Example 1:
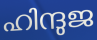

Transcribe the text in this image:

ഹിന്ദുജ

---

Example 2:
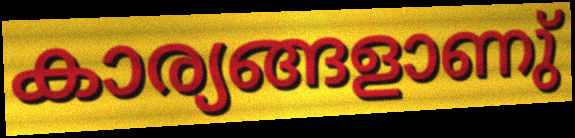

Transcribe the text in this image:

കാര്യങ്ങളാണു്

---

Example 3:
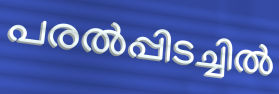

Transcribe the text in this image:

പരൽപ്പിടച്ചിൽ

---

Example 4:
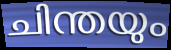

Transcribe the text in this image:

ചിന്തയും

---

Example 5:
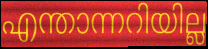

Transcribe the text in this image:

എന്താന്നറിയില്ല